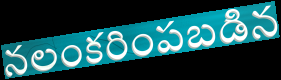
నలంకరింపబడిన